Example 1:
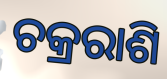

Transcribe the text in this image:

ଚକ୍ରରାଶି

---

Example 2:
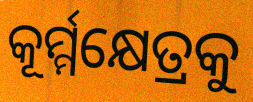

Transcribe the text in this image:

କୂର୍ମ୍ମକ୍ଷେତ୍ରକୁ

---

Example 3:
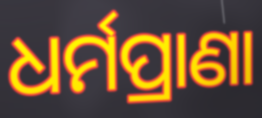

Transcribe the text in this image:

ଧର୍ମପ୍ରାଣା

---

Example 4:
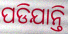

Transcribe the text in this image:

ପଡିଯାନ୍ତି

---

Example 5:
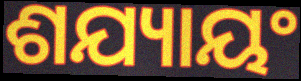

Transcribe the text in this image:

ଶଯ୍ୟାୟଂ